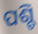
ପଶ୍ଚି